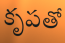
కృపతో